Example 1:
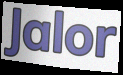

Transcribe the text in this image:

Jalor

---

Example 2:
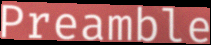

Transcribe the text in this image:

Preamble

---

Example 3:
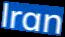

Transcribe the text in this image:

Iran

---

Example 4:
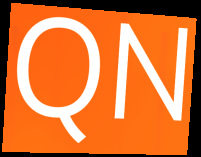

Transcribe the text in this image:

QN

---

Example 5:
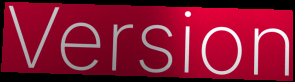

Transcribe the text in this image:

Version